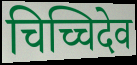
चिच्चिदेव